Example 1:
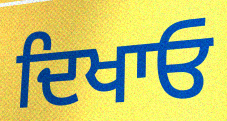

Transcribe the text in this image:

ਦਿਖਾਓ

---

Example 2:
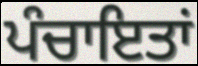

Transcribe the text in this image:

ਪੰਚਾਇਤਾਂ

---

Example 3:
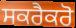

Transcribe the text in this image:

ਸਕਰੈਕਰੋ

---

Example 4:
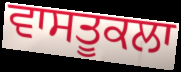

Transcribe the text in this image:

ਵਾਸਤੂਕਲਾ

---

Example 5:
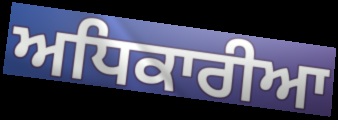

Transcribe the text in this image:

ਅਧਿਕਾਰੀਆ